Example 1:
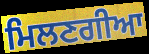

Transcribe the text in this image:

ਮਿਲਣਗੀਆ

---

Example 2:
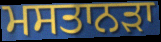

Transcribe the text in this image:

ਮਸਤਾਨੜਾ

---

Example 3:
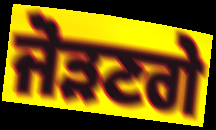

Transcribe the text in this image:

ਜੋੜਣਗੇ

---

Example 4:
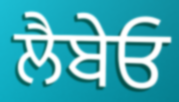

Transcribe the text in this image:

ਲੈਬੇਓ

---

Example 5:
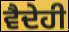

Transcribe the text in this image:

ਵੈਦੇਹੀ